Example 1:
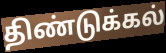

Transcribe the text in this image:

திண்டுக்கல்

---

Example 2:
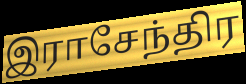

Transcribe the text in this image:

இராசேந்திர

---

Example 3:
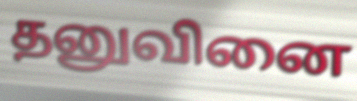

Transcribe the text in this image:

தனுவினை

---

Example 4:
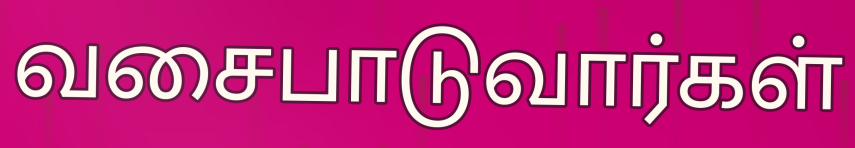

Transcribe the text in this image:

வசைபாடுவார்கள்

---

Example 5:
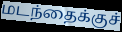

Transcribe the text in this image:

மடந்தைக்குச்